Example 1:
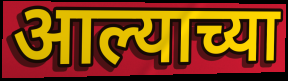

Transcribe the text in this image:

आल्याच्या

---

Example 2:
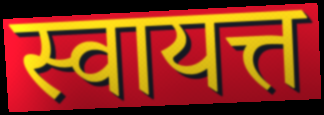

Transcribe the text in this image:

स्वायत्त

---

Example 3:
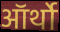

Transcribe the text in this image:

ऑर्थो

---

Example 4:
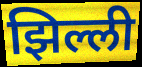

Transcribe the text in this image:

झिल्ली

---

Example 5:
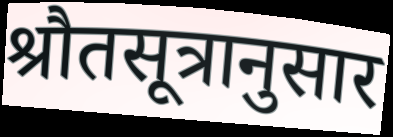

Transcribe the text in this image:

श्रौतसूत्रानुसार